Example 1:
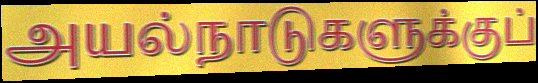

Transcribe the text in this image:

அயல்நாடுகளுக்குப்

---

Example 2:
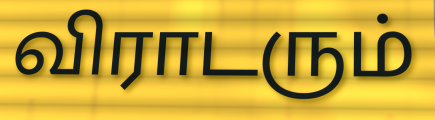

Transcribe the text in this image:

விராடரும்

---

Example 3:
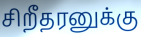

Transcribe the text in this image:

சிறீதரனுக்கு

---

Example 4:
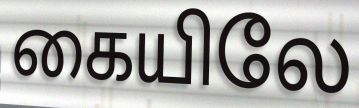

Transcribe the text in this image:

கையிலே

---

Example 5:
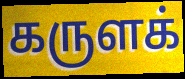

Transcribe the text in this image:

கருளக்